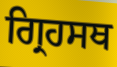
ਗ੍ਰਿਹਸਥ